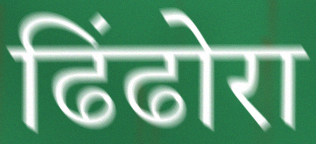
ढिंढोरा